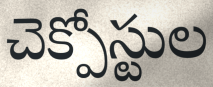
చెక్పోస్టుల